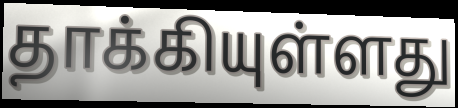
தாக்கியுள்ளது